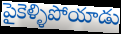
పైకెళ్ళిపోయాడు